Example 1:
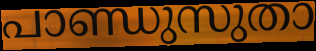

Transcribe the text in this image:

പാണ്ഡുസുതാ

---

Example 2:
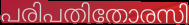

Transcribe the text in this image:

പരിപതിതോരസി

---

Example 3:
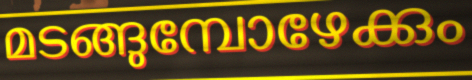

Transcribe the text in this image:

മടങ്ങുമ്പോഴേക്കും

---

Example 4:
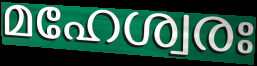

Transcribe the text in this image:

മഹേശ്വരഃ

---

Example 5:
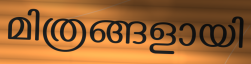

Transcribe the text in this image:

മിത്രങ്ങളായി